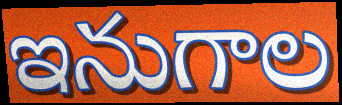
ఇనుగాల